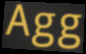
Agg